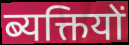
ब्यक्तियों